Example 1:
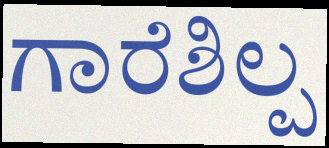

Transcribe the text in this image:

ಗಾರೆಶಿಲ್ಪ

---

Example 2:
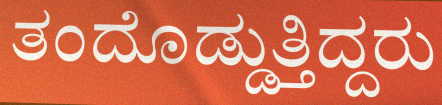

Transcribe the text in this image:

ತಂದೊಡ್ಡುತ್ತಿದ್ದರು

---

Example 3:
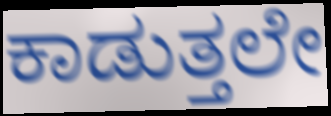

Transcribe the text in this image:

ಕಾಡುತ್ತಲೇ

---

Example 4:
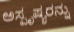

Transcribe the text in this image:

ಅಸ್ಪೃಷ್ಯರನ್ನು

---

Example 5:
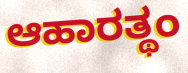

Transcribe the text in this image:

ಆಹಾರತ್ಥಂ